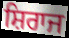
ਸ਼ਿਰਾਜ